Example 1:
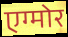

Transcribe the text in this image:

एग्मोर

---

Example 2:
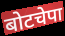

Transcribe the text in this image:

बोटचेपा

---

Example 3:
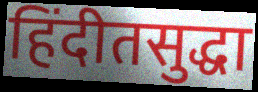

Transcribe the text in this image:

हिंदीतसुद्धा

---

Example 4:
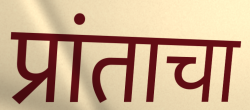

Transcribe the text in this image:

प्रांताचा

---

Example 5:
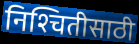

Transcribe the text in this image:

निश्चितीसाठी